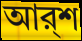
আর্‌শ